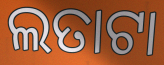
ଲତାଟା